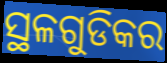
ସ୍ଥଳଗୁଡିକର